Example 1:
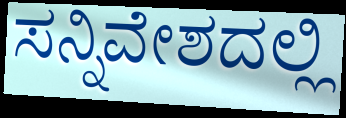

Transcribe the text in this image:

ಸನ್ನಿವೇಶದಲ್ಲಿ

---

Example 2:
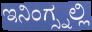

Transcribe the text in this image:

ಇನಿಂಗ್ಸ್ನಲ್ಲಿ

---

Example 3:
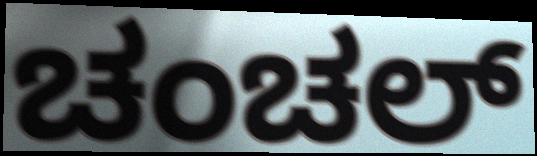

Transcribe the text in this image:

ಚಂಚಲ್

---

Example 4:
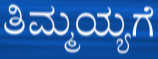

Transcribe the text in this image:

ತಿಮ್ಮಯ್ಯಗೆ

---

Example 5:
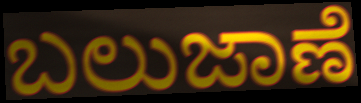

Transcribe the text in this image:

ಬಲುಜಾಣೆ